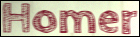
Homer